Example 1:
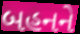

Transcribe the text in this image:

બહનને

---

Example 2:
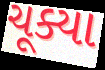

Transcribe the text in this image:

ચૂક્યા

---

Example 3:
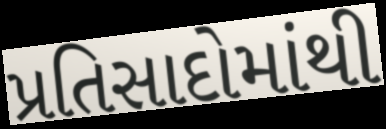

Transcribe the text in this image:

પ્રતિસાદોમાંથી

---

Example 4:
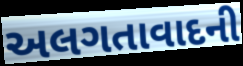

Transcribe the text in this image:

અલગતાવાદની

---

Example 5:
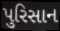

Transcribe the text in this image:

પુરિસાન